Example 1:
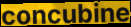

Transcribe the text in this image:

concubine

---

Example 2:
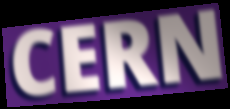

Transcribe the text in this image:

CERN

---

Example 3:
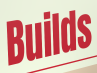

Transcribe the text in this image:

Builds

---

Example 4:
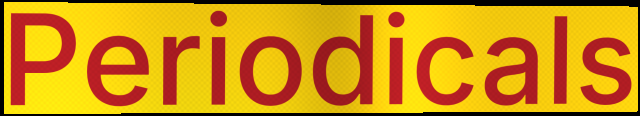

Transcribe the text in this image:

Periodicals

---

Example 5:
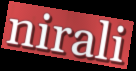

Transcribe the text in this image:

nirali